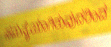
ಸಮಸ್ಯೆಯಾಗಿರುವುದರಿಂದ